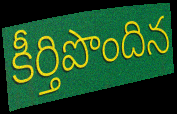
కీర్తిపొందిన